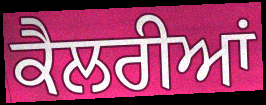
ਕੈਲਰੀਆਂ